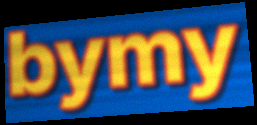
bymy